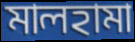
মালহামা